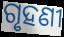
ଗୃହଣୀ